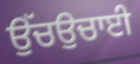
ਉੱਚਉਚਾਈ